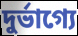
দুর্ভাগ্যে